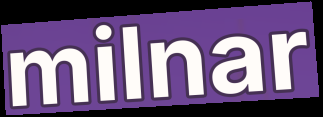
milnar